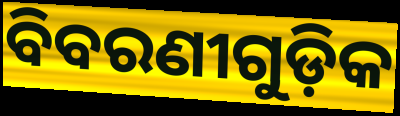
ବିବରଣୀଗୁଡ଼ିକ